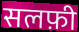
सलफ़ी